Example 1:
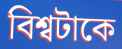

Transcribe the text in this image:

বিশ্বটাকে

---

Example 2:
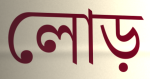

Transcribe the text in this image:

লোড়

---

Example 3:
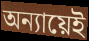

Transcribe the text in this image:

অন্যায়েই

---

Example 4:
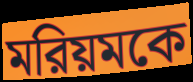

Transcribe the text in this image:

মরিয়মকে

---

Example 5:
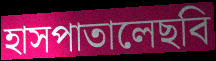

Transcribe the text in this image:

হাসপাতালেছবি